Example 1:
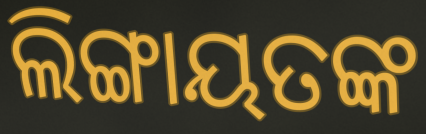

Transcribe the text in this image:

ଲିଙ୍ଗାୟତଙ୍କ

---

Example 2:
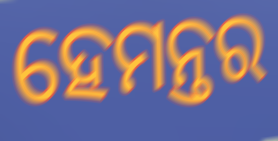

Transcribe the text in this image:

ହେମନ୍ତର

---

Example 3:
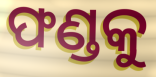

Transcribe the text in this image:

ଫଣ୍ଡକୁ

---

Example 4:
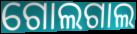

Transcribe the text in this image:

ଗୋଲଗାଲ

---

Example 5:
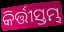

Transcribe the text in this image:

କିର୍ତ୍ତୀସ୍ତମ୍ଭ